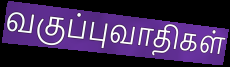
வகுப்புவாதிகள்